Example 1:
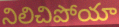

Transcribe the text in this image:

నిలిచిపోయా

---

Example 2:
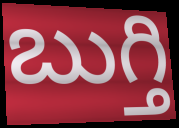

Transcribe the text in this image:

బుగ్తి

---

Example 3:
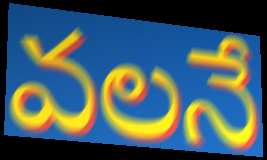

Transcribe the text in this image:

వలనే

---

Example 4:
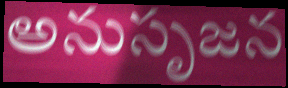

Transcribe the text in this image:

అనుసృజన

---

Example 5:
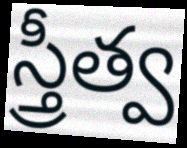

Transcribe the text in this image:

స్త్రీత్వ